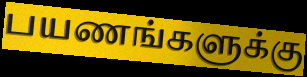
பயணங்களுக்கு